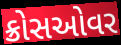
ક્રોસઓવર